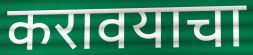
करावयाचा